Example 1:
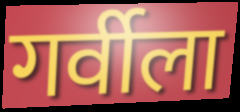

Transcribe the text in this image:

गर्वीला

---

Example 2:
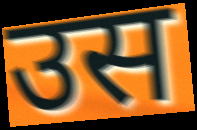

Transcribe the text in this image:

उस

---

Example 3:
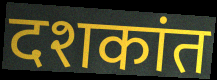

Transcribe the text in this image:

दशकांत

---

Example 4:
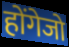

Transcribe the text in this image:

होंगेजो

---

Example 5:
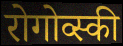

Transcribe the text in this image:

रोगोव्स्की